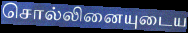
சொல்லினையுடைய